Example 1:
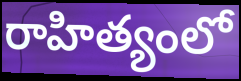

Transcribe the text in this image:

రాహిత్యంలో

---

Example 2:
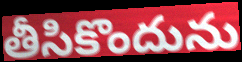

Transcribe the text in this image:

తీసికొందును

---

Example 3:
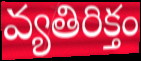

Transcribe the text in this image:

వ్యతిరిక్తం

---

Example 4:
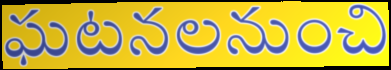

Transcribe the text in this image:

ఘటనలనుంచి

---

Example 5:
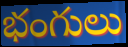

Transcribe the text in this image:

భంగులు